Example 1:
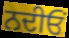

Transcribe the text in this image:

ਨਦੀਓਂ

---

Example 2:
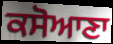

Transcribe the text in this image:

ਕਸੋਆਣਾ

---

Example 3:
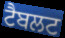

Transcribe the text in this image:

ਟੈਬਲਟ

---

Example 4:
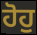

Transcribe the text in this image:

ਹੋਹੁ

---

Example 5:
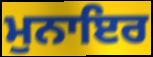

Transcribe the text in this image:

ਮੁਨਾਇਰ